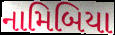
નામિબિયા